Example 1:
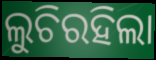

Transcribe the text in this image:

ଲୁଚିରହିଲା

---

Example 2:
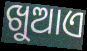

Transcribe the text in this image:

ଖୁଆଏ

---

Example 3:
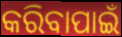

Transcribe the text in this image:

କରିବାପାଇଁ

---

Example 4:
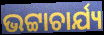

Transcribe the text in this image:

ଭଟ୍ଟାଚାର୍ଯ୍ୟ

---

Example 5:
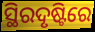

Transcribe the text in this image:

ସ୍ଥିରଦୃଷ୍ଟିରେ